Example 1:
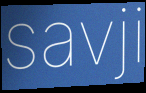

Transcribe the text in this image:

savji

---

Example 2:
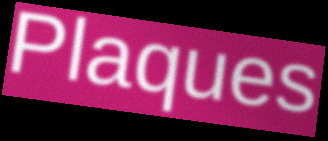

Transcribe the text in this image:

Plaques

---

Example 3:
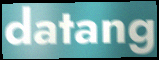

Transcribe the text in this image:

datang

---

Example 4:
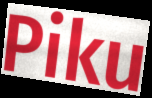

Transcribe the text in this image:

Piku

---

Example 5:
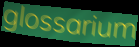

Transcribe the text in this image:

glossarium